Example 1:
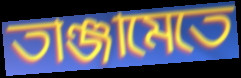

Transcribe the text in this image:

তাঞ্জামেতে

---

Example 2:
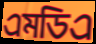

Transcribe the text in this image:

এমডিএ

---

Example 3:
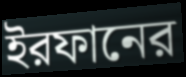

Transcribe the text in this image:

ইরফানের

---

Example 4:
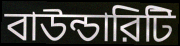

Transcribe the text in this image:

বাউন্ডারিটি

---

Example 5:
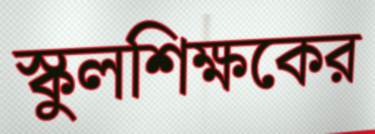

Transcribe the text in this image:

স্কুলশিক্ষকের